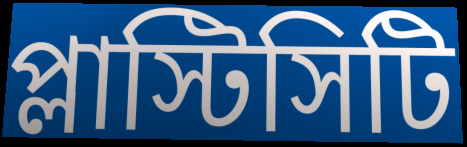
প্লাস্টিসিটি